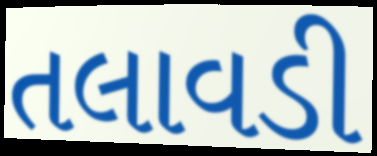
તલાવડી